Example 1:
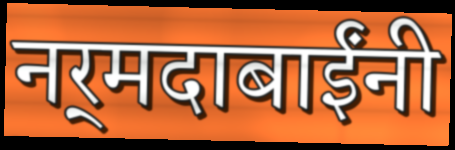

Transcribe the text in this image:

नर्मदाबाईंनी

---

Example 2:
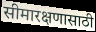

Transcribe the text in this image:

सीमारक्षणासाठी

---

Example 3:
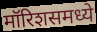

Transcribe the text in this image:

मॉरिशसमध्ये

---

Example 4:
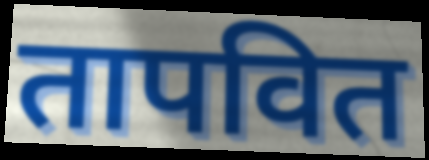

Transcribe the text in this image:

तापवित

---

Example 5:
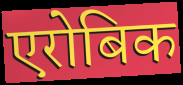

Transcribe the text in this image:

एरोबिक